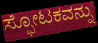
ಸ್ಫೋಟಕವನ್ನು